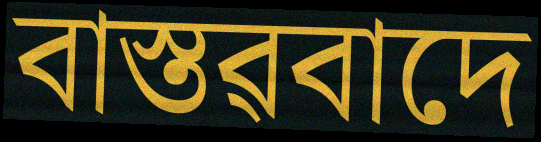
বাস্তৱবাদে